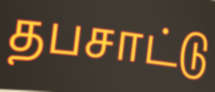
தபசாட்டு